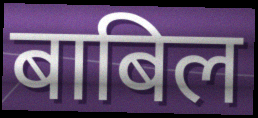
बाबिल